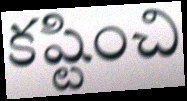
కష్టించి